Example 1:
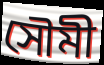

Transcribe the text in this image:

সৌমী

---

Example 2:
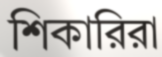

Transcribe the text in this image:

শিকারিরা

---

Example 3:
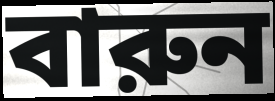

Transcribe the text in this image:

বারুন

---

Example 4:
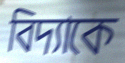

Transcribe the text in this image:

বিদ্যাকে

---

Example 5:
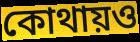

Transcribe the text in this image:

কোথায়ও